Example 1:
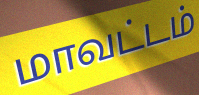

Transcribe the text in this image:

மாவட்டம்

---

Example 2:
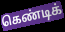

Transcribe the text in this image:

கெண்டிக்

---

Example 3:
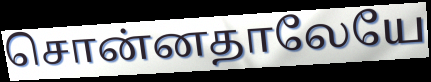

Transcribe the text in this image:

சொன்னதாலேயே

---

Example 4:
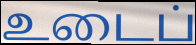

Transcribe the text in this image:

உடைப்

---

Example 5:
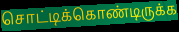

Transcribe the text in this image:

சொட்டிக்கொண்டிருக்க